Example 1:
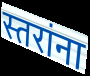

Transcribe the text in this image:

स्तरांना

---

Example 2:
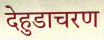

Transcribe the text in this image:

देहुडाचरण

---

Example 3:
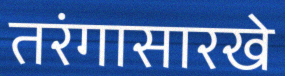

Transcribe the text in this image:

तरंगासारखे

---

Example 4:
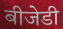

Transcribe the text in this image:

बीजेडी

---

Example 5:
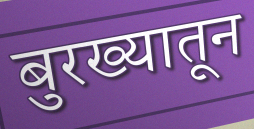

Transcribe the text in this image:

बुरख्यातून